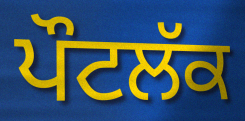
ਪੌਟਲੱਕ